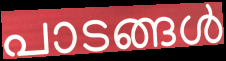
പാടങ്ങൾ